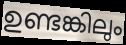
ഉണ്ടങ്കിലും